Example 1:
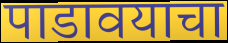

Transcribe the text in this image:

पाडावयाचा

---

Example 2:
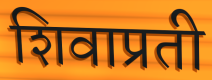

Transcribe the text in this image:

शिवाप्रती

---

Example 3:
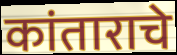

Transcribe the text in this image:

कांताराचे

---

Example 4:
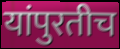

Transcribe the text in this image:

यांपुरतीच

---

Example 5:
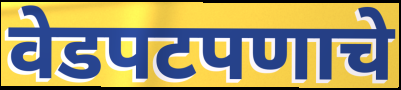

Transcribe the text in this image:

वेडपटपणाचे